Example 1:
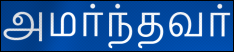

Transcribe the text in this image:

அமர்ந்தவர்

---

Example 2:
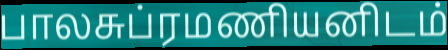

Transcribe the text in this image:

பாலசுப்ரமணியனிடம்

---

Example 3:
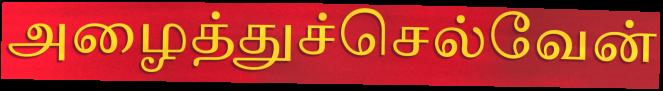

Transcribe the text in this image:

அழைத்துச்செல்வேன்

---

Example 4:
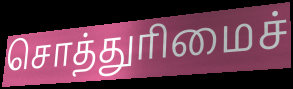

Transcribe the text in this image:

சொத்துரிமைச்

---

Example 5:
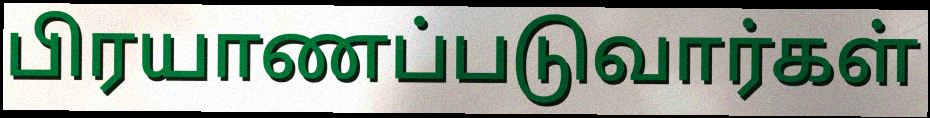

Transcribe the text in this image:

பிரயாணப்படுவார்கள்